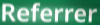
Referrer